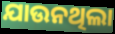
ଯାଉନଥିଲା